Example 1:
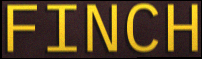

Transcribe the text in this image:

FINCH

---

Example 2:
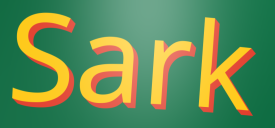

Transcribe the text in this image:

Sark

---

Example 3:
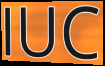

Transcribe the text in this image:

IUC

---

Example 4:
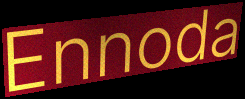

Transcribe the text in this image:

Ennoda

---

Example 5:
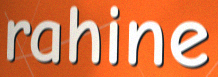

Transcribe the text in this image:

rahine